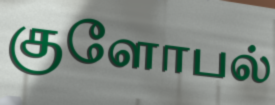
குளோபல்